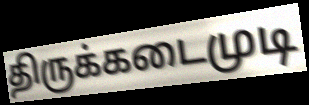
திருக்கடைமுடி